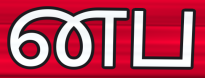
னப